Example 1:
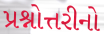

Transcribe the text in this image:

પ્રશ્નોત્તરીનો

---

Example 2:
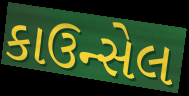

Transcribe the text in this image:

કાઉન્સેલ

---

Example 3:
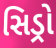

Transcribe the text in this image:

સિડ્રો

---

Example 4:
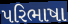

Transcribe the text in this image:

પરિભાષા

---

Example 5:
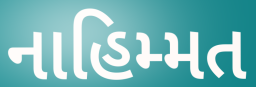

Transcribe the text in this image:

નાહિમ્મત